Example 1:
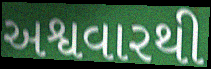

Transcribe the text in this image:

અશ્વવારથી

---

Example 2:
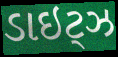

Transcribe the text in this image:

ડાઇટ્ઝ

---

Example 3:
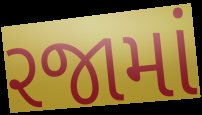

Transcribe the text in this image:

રજામાં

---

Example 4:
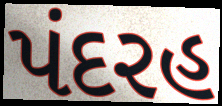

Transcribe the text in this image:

પંદરહ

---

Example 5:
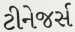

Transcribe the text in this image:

ટીનેજર્સ